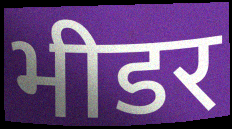
भीडर